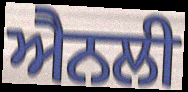
ਐਨਲੀ